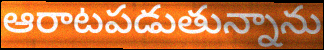
ఆరాటపడుతున్నాను